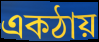
একঠায়